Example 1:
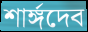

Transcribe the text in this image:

শার্ঙ্গদেব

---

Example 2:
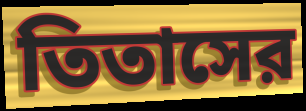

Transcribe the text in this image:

তিতাসের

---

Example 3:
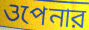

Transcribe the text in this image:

ওপেনার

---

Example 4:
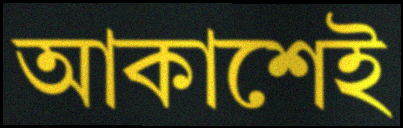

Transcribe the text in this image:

আকাশেই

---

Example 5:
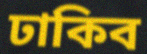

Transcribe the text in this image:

ঢাকিব